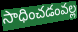
సాధించడంవల్ల